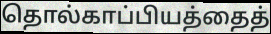
தொல்காப்பியத்தைத்